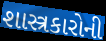
શાસ્ત્રકારોની